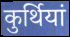
कुर्थियां